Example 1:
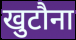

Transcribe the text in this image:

खुटौना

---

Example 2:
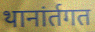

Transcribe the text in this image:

थानांर्तगत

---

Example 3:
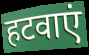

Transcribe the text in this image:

हटवाएं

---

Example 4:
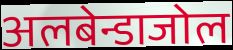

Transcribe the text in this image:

अलबेन्डाजोल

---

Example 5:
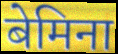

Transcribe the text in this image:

बेमिना